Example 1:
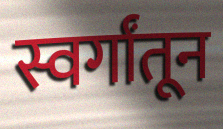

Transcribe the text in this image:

स्वर्गांतून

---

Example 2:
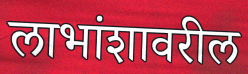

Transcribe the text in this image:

लाभांशावरील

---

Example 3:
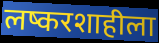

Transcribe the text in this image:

लष्करशाहीला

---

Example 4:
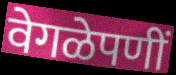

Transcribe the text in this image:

वेगळेपणीं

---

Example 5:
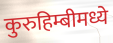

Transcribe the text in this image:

कुरुहिम्बीमध्ये